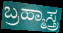
ಬ್ರಹ್ಮಾಸ್ತ್ರ